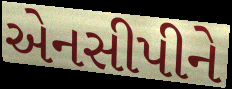
એનસીપીને